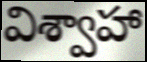
విశ్వాహా